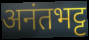
अनंतभट्ट